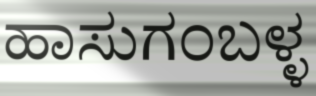
ಹಾಸುಗಂಬಳ್ಳ